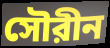
সৌরীন